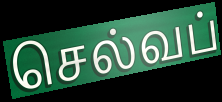
செல்வப்